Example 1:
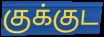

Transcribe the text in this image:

குக்குட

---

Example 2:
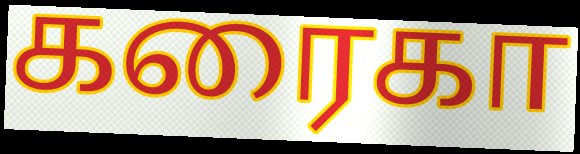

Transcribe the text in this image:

கரைகா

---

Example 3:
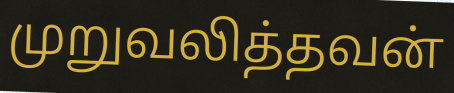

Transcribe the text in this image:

முறுவலித்தவன்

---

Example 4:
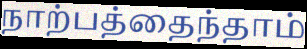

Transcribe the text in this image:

நாற்பத்தைந்தாம்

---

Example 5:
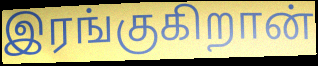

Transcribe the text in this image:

இரங்குகிறான்